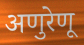
अणुरेणू